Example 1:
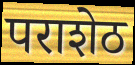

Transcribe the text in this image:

पराशेठ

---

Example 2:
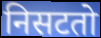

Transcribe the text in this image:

निसटतो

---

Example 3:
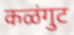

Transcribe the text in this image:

कळंगुट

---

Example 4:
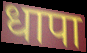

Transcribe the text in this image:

धापा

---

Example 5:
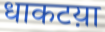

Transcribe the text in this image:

धाकटय़ा